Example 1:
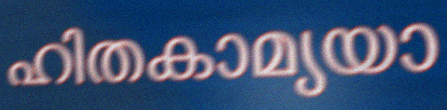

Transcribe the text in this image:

ഹിതകാമ്യയാ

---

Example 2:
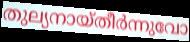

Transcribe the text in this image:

തുല്യനായ്തീർന്നുവോ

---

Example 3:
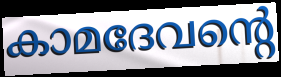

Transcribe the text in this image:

കാമദേവന്റെ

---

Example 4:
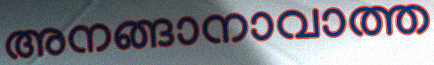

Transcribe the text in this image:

അനങ്ങാനാവാത്ത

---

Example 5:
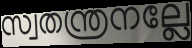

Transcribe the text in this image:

സ്വതന്ത്രനല്ലേ